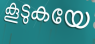
കൂടുകയേ